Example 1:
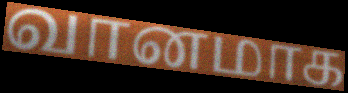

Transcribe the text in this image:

வானமாக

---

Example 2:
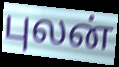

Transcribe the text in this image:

புலன்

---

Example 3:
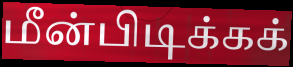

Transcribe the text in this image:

மீன்பிடிக்கக்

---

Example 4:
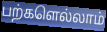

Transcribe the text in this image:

பற்களெல்லாம்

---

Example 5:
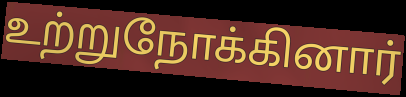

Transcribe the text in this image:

உற்றுநோக்கினார்